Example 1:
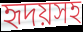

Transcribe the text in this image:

হৃদয়সহ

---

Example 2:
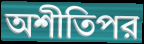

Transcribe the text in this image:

অশীতিপর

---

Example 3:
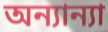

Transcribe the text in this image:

অন্যান্যা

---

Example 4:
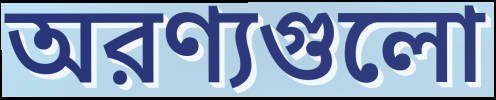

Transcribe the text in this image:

অরণ্যগুলো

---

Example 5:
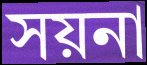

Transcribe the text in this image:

সয়না